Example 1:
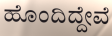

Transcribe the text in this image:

ಹೊಂದಿದ್ದೇವೆ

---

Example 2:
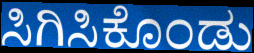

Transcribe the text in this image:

ಸಿಗಿಸಿಕೊಂಡು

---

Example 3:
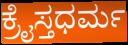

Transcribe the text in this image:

ಕ್ರೈಸ್ತಧರ್ಮ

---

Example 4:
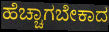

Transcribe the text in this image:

ಹೆಚ್ಚಾಗಬೇಕಾದ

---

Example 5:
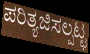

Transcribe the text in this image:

ಪರಿತ್ಯಜಿಸಲ್ಪಟ್ಟ